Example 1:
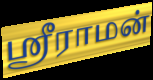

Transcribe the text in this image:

ஸ்ரீராமன்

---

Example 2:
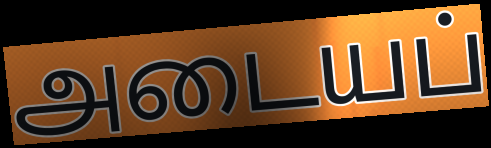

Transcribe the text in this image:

அடையப்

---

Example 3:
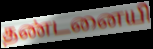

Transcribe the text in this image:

தண்டனையி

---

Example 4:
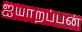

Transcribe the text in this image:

ஐயாறப்பன்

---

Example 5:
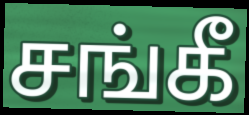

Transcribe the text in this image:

சங்கீ